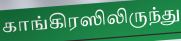
காங்கிரஸிலிருந்து